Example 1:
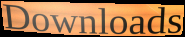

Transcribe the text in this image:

Downloads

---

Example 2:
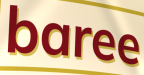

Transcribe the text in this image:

baree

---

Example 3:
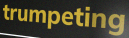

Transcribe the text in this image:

trumpeting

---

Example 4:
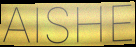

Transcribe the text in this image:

AISHE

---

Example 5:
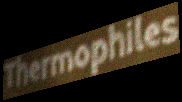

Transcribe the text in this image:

Thermophiles